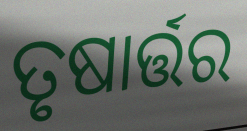
ତୃଷାର୍ତ୍ତର